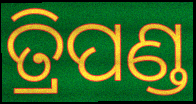
ତ୍ରିପଣ୍ଡ